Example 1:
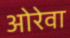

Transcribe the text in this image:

ओरेवा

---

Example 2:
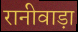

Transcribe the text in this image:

रानीवाड़ा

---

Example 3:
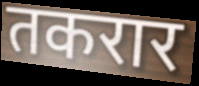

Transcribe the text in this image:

तकरार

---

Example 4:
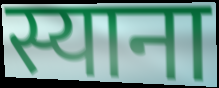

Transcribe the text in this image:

स्याना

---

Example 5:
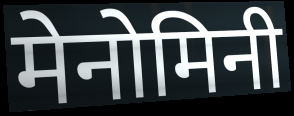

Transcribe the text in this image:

मेनोमिनी